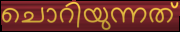
ചൊറിയുന്നത്